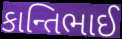
કાન્તિભાઈ